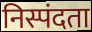
निस्पंदता